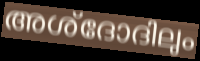
അശ്ദോദിലും